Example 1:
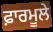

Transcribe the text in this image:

ਫ਼ਾਰਮੂਲੇ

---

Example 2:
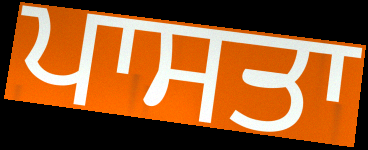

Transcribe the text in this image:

ਪਾਸਤਾ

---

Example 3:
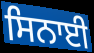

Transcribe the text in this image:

ਸਿਨਾਈ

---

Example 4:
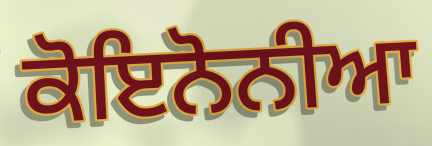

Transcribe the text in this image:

ਕੋਇਨੋਨੀਆ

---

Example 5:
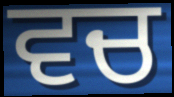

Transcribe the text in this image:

ਵਚ